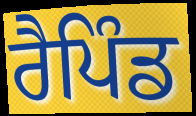
ਰੈਪਿੰਡ